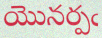
యొనర్పఁ